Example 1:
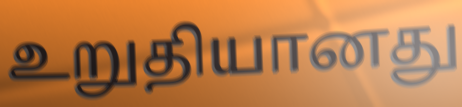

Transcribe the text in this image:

உறுதியானது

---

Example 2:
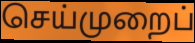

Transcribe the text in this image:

செய்முறைப்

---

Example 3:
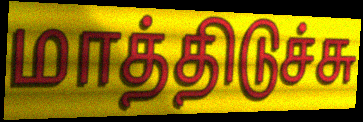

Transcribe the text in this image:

மாத்திடுச்சு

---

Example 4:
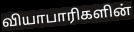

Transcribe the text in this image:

வியாபாரிகளின்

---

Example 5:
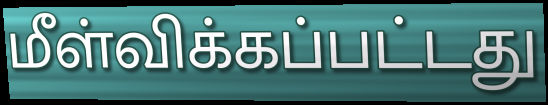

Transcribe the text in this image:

மீள்விக்கப்பட்டது